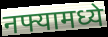
नफ्यामध्ये